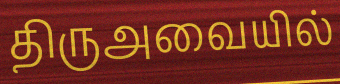
திருஅவையில்